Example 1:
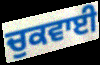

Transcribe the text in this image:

ਚੁਕਵਾਈ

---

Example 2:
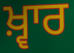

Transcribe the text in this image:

ਖ਼੍ਵਾਰ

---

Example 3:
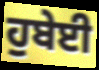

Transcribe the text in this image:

ਹੁਬੇਈ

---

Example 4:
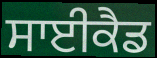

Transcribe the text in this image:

ਸਾਈਕੈਡ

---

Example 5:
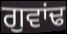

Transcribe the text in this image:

ਗੁਵਾਂਢ